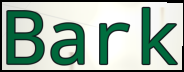
Bark